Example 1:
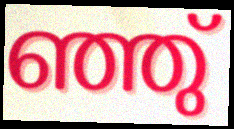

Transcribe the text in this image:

ഞ്ഞു്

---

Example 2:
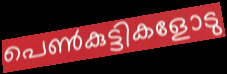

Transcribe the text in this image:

പെൺകുട്ടികളോടു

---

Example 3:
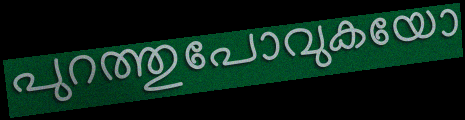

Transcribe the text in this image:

പുറത്തുപോവുകയോ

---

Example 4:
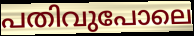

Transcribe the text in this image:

പതിവുപോലെ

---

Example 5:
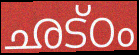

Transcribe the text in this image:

ഛട്ഠം